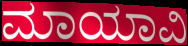
ಮಾಯಾವಿ